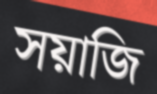
সয়াজি